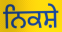
ਨਿਕਸ਼ੇ